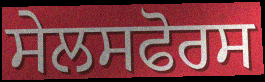
ਸੇਲਸਫੋਰਸ